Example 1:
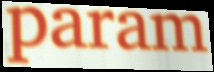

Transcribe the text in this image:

param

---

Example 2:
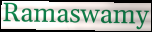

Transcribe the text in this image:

Ramaswamy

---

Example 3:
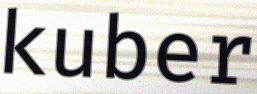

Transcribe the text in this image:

kuber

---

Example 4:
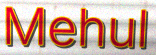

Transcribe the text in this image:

Mehul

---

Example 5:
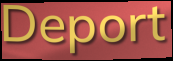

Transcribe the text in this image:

Deport